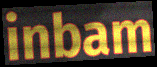
inbam